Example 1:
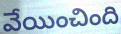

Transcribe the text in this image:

వేయించింది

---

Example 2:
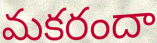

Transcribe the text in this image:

మకరందా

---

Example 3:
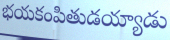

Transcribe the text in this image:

భయకంపితుడయ్యాడు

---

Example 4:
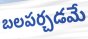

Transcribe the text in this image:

బలపర్చడమే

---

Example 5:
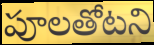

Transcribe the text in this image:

పూలతోటని